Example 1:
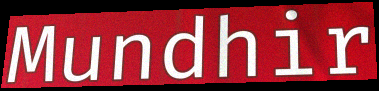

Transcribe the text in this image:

Mundhir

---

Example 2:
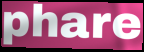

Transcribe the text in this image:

phare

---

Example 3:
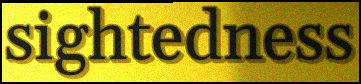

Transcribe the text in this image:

sightedness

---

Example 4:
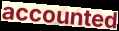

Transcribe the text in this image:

accounted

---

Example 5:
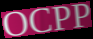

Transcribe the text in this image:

OCPP